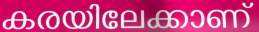
കരയിലേക്കാണ്